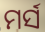
ମର୍ସ